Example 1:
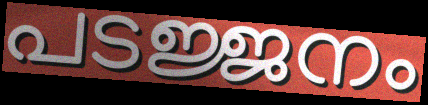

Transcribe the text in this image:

പടജ്ജനം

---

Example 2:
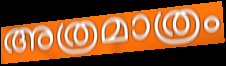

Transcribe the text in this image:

അത്രമാത്രം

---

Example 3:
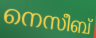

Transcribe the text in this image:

നെസീബ്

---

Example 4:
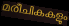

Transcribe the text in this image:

മരീചികകളും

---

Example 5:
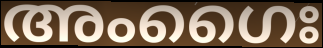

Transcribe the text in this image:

അംഗൈഃ